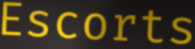
Escorts